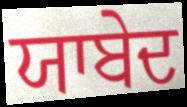
ਯਾਬੇਦ